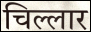
चिल्लार